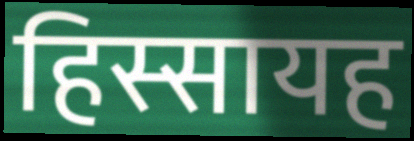
हिस्सायह